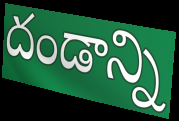
దండాన్ని